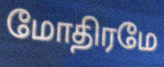
மோதிரமே